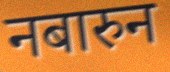
नबारुन